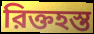
রিক্তহস্ত